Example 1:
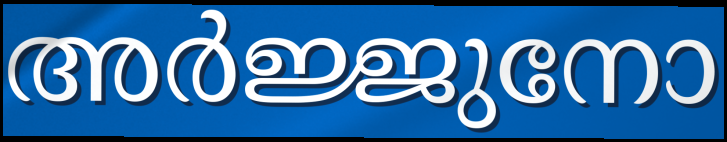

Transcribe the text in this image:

അർജ്ജുനോ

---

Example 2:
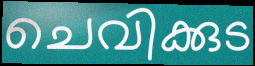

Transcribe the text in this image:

ചെവിക്കുട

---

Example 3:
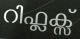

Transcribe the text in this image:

റിഫ്ലക്സ്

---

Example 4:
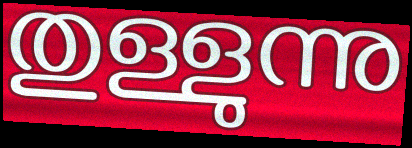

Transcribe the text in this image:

തുള്ളുന്നു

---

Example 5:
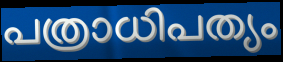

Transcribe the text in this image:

പത്രാധിപത്യം